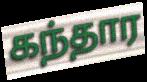
கந்தார